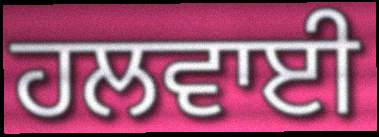
ਹਲਵਾਈ